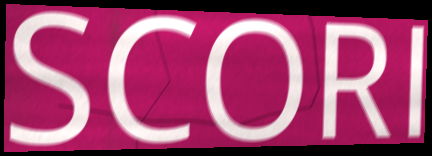
SCORI